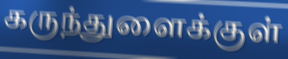
கருந்துளைக்குள்